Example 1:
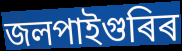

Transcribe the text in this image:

জলপাইগুৰিৰ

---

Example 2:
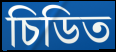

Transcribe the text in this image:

চিডিত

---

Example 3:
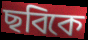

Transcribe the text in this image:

ছবিকে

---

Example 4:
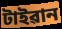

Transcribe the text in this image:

টাইৱান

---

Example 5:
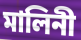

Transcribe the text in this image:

মালিনী